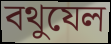
বথুযেল